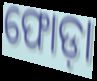
ଫୋଡ଼ା